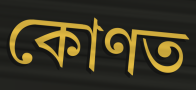
কোণত